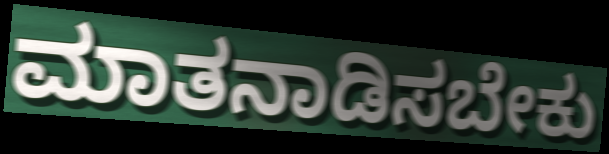
ಮಾತನಾಡಿಸಬೇಕು